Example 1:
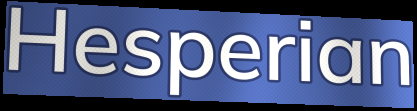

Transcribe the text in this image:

Hesperian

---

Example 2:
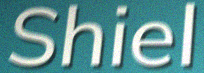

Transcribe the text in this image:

Shiel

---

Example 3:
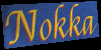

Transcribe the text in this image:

Nokka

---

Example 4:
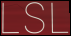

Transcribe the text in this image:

LSL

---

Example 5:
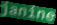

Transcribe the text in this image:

janine